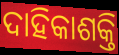
ଦାହିକାଶକ୍ତି